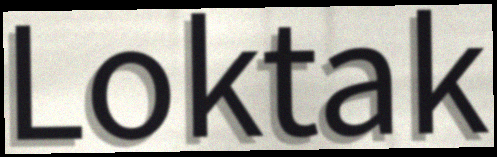
Loktak